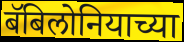
बॅबिलोनियाच्या